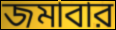
জমাবার